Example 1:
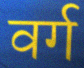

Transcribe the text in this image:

वर्ग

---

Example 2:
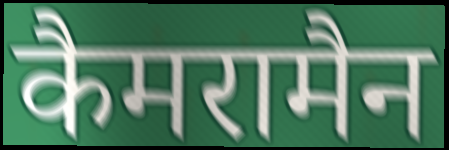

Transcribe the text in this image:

कैमरामैन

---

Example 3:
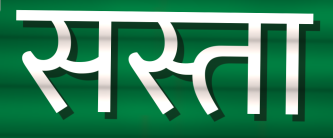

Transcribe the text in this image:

सस्ता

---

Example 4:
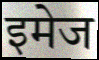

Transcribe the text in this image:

इमेज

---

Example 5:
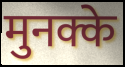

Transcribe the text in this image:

मुनक्के